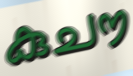
കുചൗ